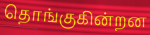
தொங்குகின்றன